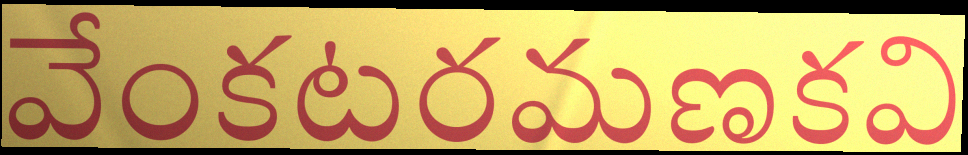
వేంకటరమణకవి